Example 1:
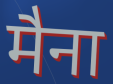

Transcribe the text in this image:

मैना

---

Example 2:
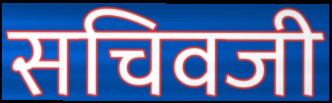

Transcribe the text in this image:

सचिवजी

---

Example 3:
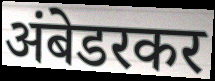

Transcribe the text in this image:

अंबेडरकर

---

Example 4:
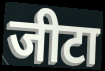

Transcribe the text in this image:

जीटा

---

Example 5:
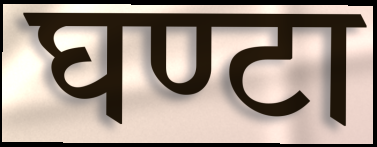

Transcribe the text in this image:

घण्टा